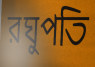
রঘুপতি